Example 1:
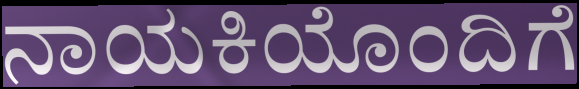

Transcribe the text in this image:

ನಾಯಕಿಯೊಂದಿಗೆ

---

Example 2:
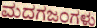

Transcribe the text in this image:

ಮದಗಜಂಗಳು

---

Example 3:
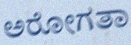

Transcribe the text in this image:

ಅರೋಗತಾ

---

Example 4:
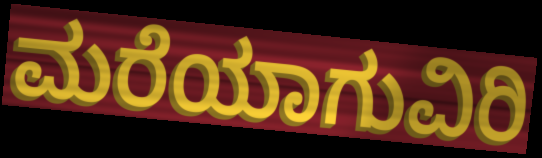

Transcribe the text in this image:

ಮರೆಯಾಗುವಿರಿ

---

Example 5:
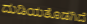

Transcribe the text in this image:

ದುಡಿಯತೊಡಗಿದೆ